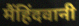
मैंहिंदवानी